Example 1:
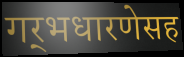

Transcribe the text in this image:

गर्भधारणेसह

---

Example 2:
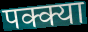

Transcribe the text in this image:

पक्क्या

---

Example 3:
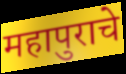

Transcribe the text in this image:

महापुराचे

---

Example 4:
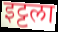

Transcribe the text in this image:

इट्टला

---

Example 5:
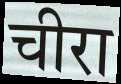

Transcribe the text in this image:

चीरा